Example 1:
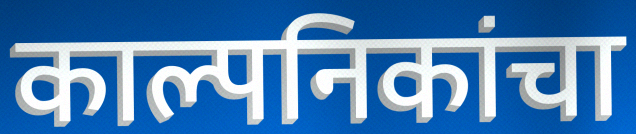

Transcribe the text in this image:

काल्पनिकांचा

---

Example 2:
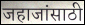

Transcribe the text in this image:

जहाजांसाठी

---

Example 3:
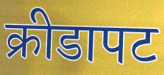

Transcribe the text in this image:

क्रीडापट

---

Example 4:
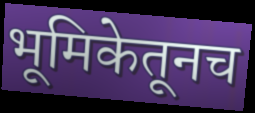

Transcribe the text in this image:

भूमिकेतूनच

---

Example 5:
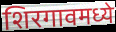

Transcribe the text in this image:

शिरगावमध्ये